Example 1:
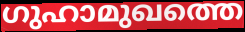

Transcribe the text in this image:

ഗുഹാമുഖത്തെ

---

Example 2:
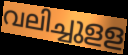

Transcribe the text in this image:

വലിച്ചുളള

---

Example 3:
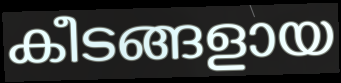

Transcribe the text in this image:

കീടങ്ങളായ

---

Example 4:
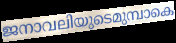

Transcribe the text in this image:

ജനാവലിയുടെമുമ്പാകെ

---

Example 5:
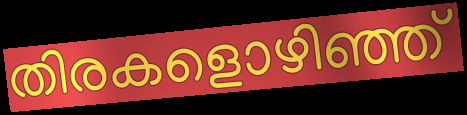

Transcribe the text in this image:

തിരകളൊഴിഞ്ഞ്